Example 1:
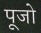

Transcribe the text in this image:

पूजो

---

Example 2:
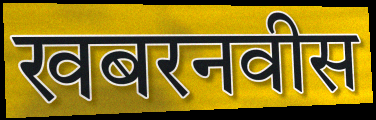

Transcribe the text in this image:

खबरनवीस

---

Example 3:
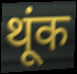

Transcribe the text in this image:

थूंक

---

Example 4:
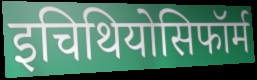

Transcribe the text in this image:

इचिथियोसिफॉर्म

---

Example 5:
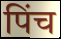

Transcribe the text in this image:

पिंच